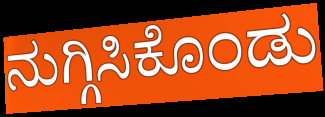
ನುಗ್ಗಿಸಿಕೊಂಡು